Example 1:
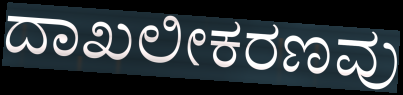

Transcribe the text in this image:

ದಾಖಲೀಕರಣವು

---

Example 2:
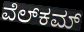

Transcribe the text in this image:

ವೆಲ್‍ಕಮ್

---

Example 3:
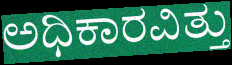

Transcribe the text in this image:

ಅಧಿಕಾರವಿತ್ತು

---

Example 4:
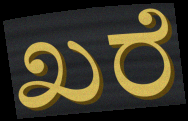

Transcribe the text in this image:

ಖರೆ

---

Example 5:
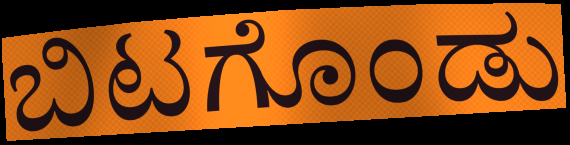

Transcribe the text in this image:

ಬಿಟಗೊಂಡು